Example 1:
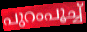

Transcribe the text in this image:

പുറംപൂച്ച്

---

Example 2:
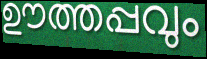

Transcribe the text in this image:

ഊത്തപ്പവും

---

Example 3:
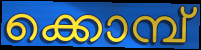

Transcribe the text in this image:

ക്കൊമ്പ്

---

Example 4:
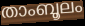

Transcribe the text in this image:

താംബൂലം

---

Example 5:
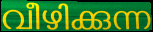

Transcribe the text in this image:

വീഴിക്കുന്ന